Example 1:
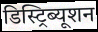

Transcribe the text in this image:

डिस्ट्रिब्यूशन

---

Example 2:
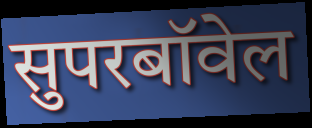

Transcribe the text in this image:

सुपरबॉवेल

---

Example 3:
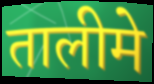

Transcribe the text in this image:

तालीमे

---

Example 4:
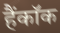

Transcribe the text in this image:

हैंकॉक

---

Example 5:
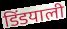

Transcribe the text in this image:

डिंडयाली